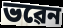
ভৱেন